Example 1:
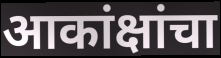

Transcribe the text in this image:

आकांक्षांचा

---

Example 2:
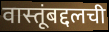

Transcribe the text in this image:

वास्तूंबद्दलची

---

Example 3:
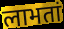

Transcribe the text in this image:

लाभतां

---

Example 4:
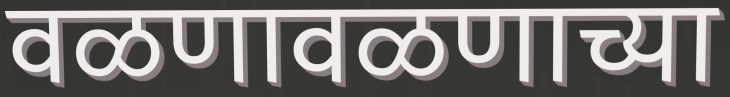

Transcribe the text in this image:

वळणावळणाच्या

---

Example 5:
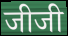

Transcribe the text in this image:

जीजी